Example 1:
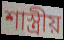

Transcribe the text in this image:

শাস্ত্ৰীয়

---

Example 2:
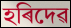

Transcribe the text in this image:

হৰিদেৱ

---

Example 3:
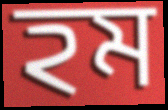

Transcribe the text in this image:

হম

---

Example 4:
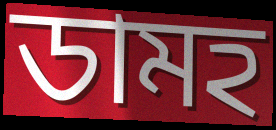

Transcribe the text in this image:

ডামহ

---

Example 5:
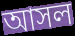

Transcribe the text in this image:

আসল